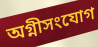
অগ্নীসংযোগ